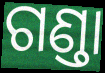
ଗଣ୍ଡା